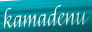
kamadenu